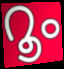
റൂം